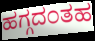
ಹಗ್ಗದಂತಹ